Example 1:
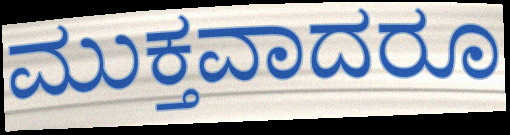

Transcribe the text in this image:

ಮುಕ್ತವಾದರೂ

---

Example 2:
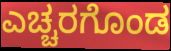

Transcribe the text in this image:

ಎಚ್ಚರಗೊಂಡ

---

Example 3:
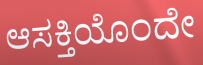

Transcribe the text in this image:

ಆಸಕ್ತಿಯೊಂದೇ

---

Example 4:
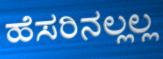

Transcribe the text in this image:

ಹೆಸರಿನಲ್ಲಲ್ಲ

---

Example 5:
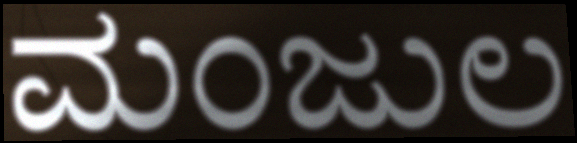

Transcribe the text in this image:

ಮಂಜುಲ